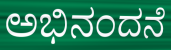
ಅಭಿನಂದನೆ